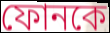
ফোনকে